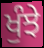
ਖੁੰਝੇ